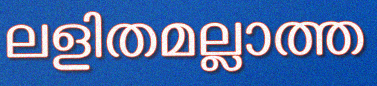
ലളിതമല്ലാത്ത